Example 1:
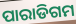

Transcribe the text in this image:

ପାରାଡିଗମ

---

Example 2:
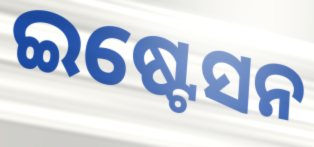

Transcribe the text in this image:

ଇଷ୍ଟେସନ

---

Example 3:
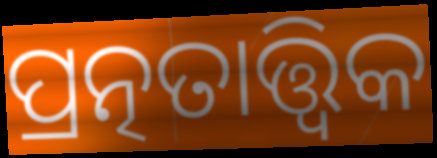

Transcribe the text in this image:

ପ୍ରତ୍ନତାତ୍ତ୍ଵିକ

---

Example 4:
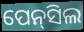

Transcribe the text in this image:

ପେନ୍‌ସିଲ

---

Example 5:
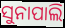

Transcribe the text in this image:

ସୁନାପାଲି